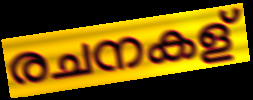
രചനകള്